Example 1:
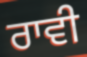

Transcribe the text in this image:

ਰਾਵੀ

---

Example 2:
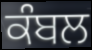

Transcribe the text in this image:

ਕੰਬਲ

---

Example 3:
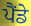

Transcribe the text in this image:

ਪੈਂਡੇ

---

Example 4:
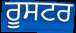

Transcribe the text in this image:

ਰੂਸਟਰ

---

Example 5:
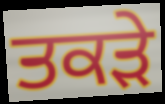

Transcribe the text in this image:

ਤਕੜੇ